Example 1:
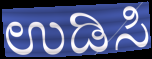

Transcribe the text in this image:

ಉಡಿಸಿ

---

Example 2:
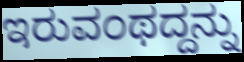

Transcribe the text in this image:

ಇರುವಂಥದ್ದನ್ನು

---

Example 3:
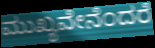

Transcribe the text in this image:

ಮುಖ್ಯವೇನೆಂದರೆ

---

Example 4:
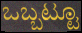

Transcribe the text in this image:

ಒಬ್ಬಟ್ಟೂ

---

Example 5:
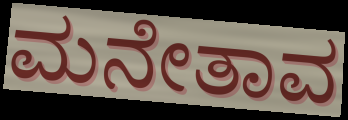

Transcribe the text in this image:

ಮನೇತಾವ